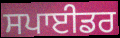
ਸਪਾਈਡਰ